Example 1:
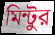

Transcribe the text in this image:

মিন্টুর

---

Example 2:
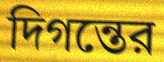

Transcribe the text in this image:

দিগন্তের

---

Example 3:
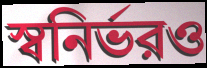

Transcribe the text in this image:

স্বনির্ভরও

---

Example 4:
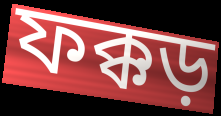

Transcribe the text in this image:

ফক্কড়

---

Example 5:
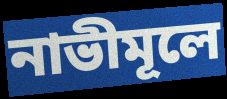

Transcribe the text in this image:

নাভীমূলে